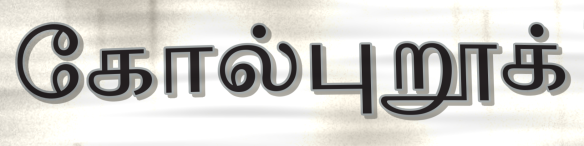
கோல்புறூக்